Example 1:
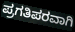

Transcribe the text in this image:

ಪ್ರಗತಿಪರವಾಗಿ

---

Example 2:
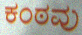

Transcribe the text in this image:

ಕಂಠವು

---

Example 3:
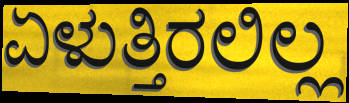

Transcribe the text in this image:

ಏಳುತ್ತಿರಲಿಲ್ಲ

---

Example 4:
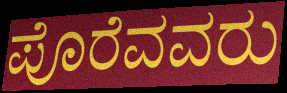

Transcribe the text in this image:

ಪೊರೆವವರು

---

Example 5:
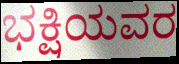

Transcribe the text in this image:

ಭಕ್ಷಿಯವರ